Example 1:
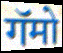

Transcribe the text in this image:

गॅमो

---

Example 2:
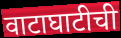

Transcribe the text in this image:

वाटाघाटीची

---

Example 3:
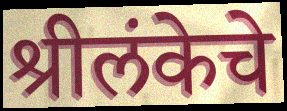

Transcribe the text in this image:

श्रीलंकेचे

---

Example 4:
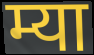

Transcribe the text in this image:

म्या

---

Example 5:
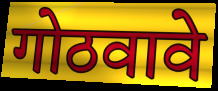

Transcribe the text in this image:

गोठवावे